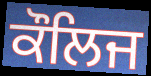
ਕੌਲਿਜ